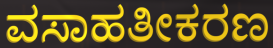
ವಸಾಹತೀಕರಣ